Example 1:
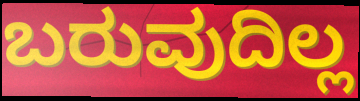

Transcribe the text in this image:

ಬರುವುದಿಲ್ಲ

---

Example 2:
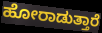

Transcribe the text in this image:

ಹೋರಾಡುತ್ತಾರೆ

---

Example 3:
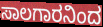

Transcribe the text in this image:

ಸಾಲಗಾರನಿಂದ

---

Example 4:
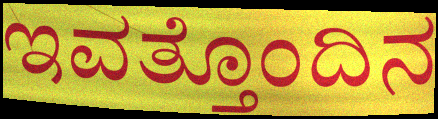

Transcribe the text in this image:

ಇವತ್ತೊಂದಿನ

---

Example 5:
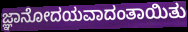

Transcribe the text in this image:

ಜ್ಞಾನೋದಯವಾದಂತಾಯಿತು